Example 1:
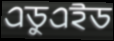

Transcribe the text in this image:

এডুএইড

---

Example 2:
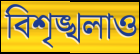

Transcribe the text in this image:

বিশৃঙ্খলাও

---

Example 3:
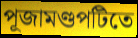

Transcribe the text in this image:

পূজামণ্ডপটিতে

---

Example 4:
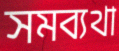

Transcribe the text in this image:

সমব্যথা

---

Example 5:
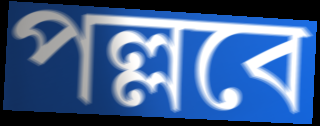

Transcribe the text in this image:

পল্লবে